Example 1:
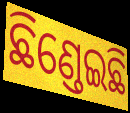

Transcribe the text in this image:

ଛିଣ୍ଡେଇଛି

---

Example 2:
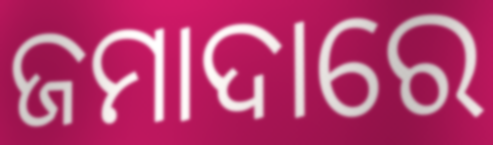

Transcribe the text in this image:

ଜମାଦାରେ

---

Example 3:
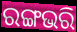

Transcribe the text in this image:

ରଙ୍ଗଭରି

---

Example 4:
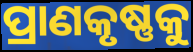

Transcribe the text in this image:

ପ୍ରାଣକୃଷ୍ଣକୁ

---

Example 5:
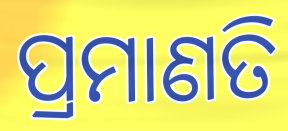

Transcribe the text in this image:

ପ୍ରମାଣତି